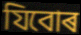
যিবোৰ